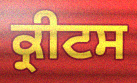
ਕ੍ਰੀਟਸ